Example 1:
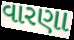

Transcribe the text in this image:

વારણા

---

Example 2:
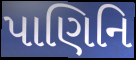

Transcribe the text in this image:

પાણિનિ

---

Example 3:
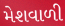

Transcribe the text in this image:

મેશવાળી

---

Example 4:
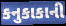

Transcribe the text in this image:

કનુકાકાની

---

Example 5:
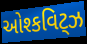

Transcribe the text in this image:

ઓશ્કવિટ્ઝ